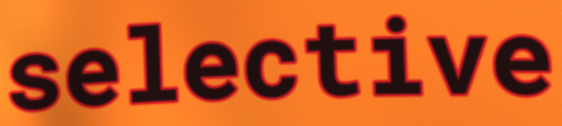
selective